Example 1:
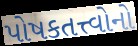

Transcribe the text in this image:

પોષકતત્ત્વોનો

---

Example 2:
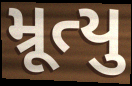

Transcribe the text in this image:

મ્રૂત્યુ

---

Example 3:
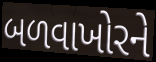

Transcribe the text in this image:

બળવાખોરને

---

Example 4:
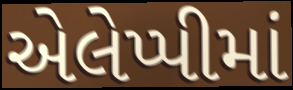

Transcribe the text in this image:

એલેપ્પીમાં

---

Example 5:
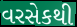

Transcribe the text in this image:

વરસેકથી